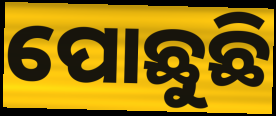
ପୋଛୁଛି